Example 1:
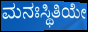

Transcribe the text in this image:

ಮನಃಸ್ಥಿತಿಯೇ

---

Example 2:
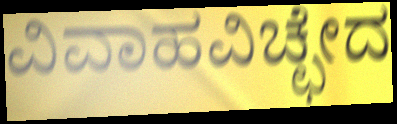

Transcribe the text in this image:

ವಿವಾಹವಿಚ್ಛೇದ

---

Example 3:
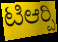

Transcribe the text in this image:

ಟಿಆರ್‍ಪಿ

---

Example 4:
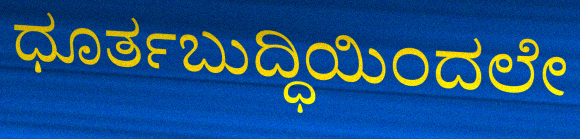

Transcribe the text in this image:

ಧೂರ್ತಬುದ್ಧಿಯಿಂದಲೇ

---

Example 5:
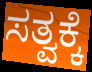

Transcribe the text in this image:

ಸತ್ವಕ್ಕೆ